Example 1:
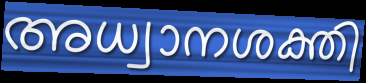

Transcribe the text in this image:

അധ്വാനശക്തി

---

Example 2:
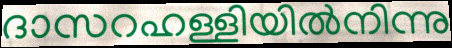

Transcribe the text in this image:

ദാസറഹള്ളിയിൽനിന്നു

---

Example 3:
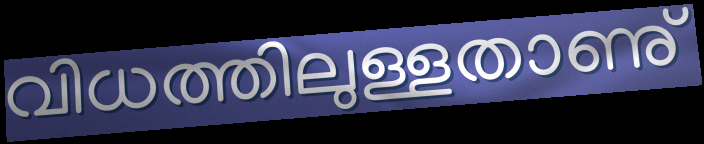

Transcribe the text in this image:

വിധത്തിലുള്ളതാണു്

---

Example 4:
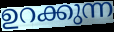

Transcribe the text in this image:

ഉറക്കുന്ന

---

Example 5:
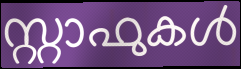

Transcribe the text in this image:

സ്റ്റാഫുകൾ